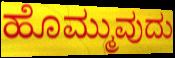
ಹೊಮ್ಮುವುದು